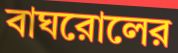
বাঘরোলের